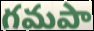
గమపా